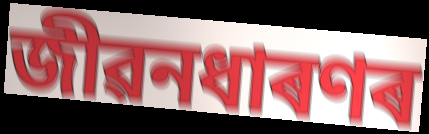
জীৱনধাৰণৰ